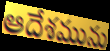
ఆదేశమును